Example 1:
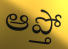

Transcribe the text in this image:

ఆప్తో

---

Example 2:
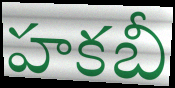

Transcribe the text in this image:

హకబీ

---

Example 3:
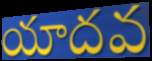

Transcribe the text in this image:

యాదవ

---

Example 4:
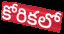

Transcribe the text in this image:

కోరికలో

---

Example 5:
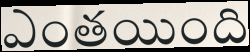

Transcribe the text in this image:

ఎంతయింది